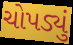
ચોપડ્યું